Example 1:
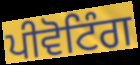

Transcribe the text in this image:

ਪੀਵੋਟਿੰਗ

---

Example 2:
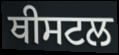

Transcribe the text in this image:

ਥੀਸਟਲ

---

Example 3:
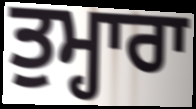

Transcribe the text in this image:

ਤੁਮ੍ਹਾਰਾ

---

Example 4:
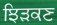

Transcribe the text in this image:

ਝਿੜਕਣ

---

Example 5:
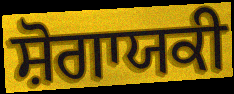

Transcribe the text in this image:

ਸ਼ੋਗਾਯਕੀ